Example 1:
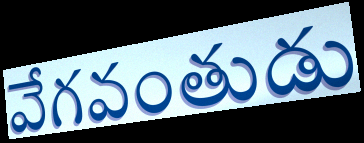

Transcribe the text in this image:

వేగవంతుడు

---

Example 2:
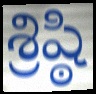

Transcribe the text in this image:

శ్రిష్ఠి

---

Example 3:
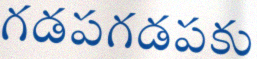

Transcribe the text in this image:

గడపగడపకు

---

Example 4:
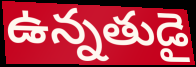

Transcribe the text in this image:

ఉన్నతుడై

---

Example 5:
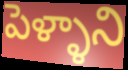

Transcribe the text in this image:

పెళ్ళాని